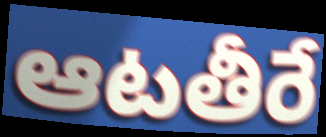
ఆటతీరే